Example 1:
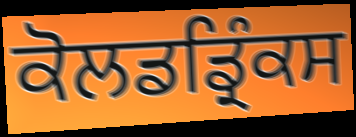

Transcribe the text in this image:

ਕੋਲਡਡ੍ਰਿੰਕਸ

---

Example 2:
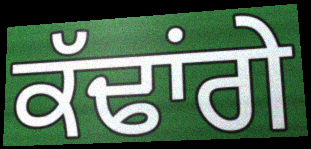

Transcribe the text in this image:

ਕੱਢਾਂਗੇ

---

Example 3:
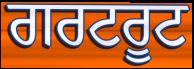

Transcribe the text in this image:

ਗਰਟਰੂਟ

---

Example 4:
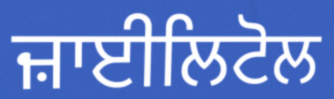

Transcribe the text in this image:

ਜ਼ਾਈਲਿਟੋਲ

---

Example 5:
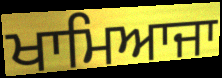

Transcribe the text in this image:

ਖਾਮਿਆਜਾ